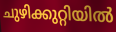
ചുഴിക്കുറ്റിയിൽ